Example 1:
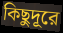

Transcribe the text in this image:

কিছুদূরে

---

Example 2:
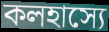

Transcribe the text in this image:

কলহাস্যে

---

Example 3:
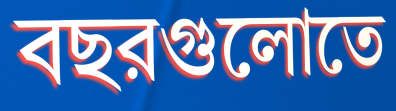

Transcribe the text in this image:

বছরগুলোতে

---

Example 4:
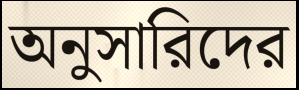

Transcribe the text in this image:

অনুসারিদের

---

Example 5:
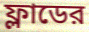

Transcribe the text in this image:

ফ্লাডের